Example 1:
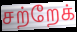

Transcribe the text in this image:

சற்றேக்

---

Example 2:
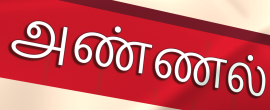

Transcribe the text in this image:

அண்ணல்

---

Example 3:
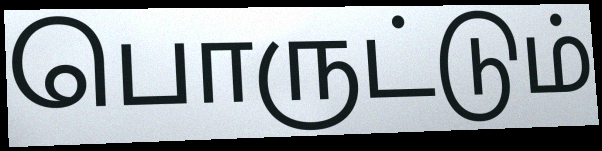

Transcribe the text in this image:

பொருட்டும்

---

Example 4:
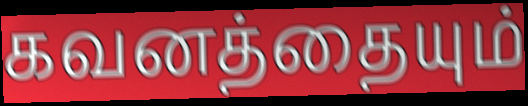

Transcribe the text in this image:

கவனத்தையும்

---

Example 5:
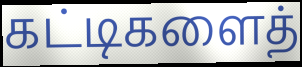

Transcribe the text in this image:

கட்டிகளைத்